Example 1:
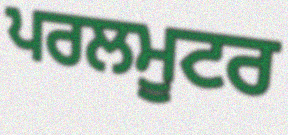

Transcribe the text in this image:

ਪਰਲਮੂਟਰ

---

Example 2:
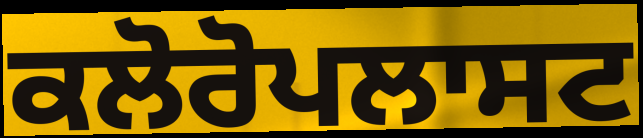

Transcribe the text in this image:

ਕਲੋਰੋਪਲਾਸਟ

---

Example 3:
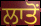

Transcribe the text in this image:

ਲਾਤੋਂ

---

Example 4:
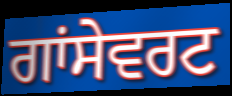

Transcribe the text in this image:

ਗਾਂਸੇਵਰਟ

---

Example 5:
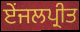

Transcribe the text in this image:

ਏਂਜਲਪ੍ਰੀਤ